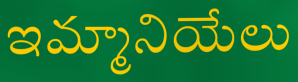
ఇమ్మానియేలు